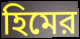
হিমের